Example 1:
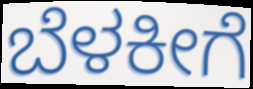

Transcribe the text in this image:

ಬೆಳಕೀಗೆ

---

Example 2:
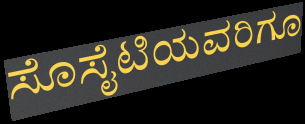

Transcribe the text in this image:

ಸೊಸೈಟಿಯವರಿಗೂ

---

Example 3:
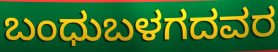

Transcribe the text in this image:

ಬಂಧುಬಳಗದವರ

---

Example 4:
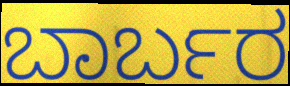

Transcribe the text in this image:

ಬಾರ್ಬರ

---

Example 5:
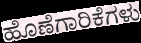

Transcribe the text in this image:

ಹೊಣೆಗಾರಿಕೆಗಳು